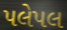
પલેપલ